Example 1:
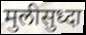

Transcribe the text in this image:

मुलीसुध्दा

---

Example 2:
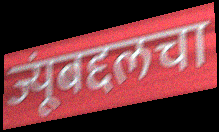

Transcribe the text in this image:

ज्यूंबद्दलचा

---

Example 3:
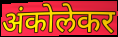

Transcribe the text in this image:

अंकोलेकर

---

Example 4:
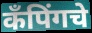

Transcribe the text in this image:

कँपिंगचे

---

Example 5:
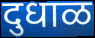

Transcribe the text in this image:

दुधाळ